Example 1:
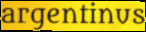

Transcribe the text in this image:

argentinus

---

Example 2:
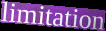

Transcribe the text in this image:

limitation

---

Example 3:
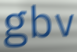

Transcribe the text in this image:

gbv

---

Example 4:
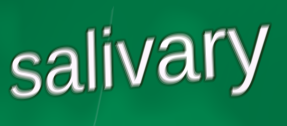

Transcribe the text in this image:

salivary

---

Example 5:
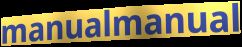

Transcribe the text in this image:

manualmanual